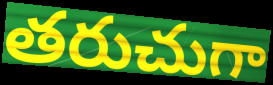
తరుచుగా